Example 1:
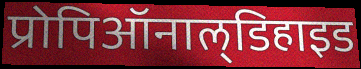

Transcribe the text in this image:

प्रोपिऑनाल्डिहाइड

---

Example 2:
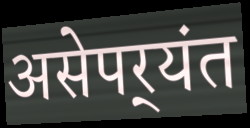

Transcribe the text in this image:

असेपर्यंत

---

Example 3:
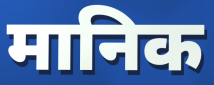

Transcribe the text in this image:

मानिक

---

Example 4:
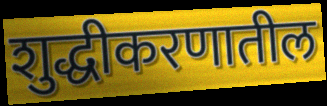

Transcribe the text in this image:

शुद्धीकरणातील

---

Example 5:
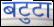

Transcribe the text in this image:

बटुटा